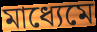
মাধ্যেমে